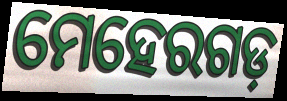
ମେହେରଗଡ଼